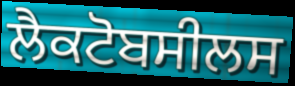
ਲੈਕਟੋਬਸੀਲਸ